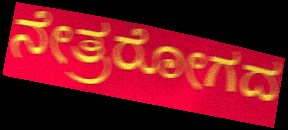
ನೇತ್ರರೋಗದ